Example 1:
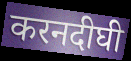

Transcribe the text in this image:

करनदीघी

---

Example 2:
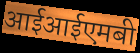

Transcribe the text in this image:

आईआईएमबी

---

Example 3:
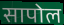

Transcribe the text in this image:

सापोल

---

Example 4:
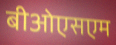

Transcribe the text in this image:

बीओएसएम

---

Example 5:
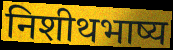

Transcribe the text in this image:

निशीथभाष्य